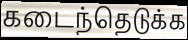
கடைந்தெடுக்க